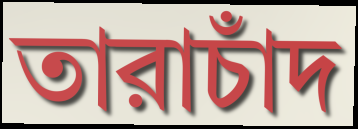
তারাচাঁদ